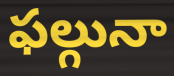
ఫల్గునా